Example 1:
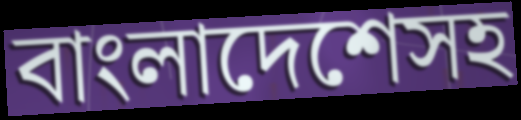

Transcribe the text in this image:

বাংলাদেশেসহ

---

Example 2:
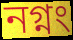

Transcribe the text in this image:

নগ্নং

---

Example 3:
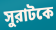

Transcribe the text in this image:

সুরাটকে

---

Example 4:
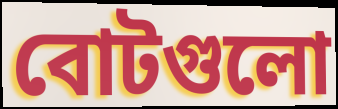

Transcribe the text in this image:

বোটগুলো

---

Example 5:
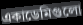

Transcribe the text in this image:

একাডেমিগুলো